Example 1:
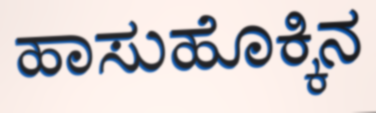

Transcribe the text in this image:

ಹಾಸುಹೊಕ್ಕಿನ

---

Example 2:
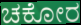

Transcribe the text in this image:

ಚಕೋರ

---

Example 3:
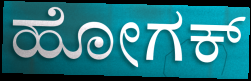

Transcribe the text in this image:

ಹೋಗಕ್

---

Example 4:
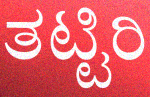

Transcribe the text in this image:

ತಟ್ಟಿರಿ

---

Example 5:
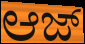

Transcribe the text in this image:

ಆಜ್